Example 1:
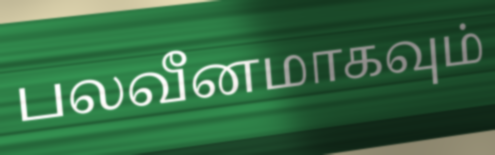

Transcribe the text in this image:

பலவீனமாகவும்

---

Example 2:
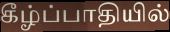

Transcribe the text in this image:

கீழ்ப்பாதியில்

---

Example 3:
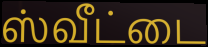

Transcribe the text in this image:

ஸ்வீட்டை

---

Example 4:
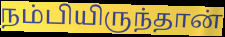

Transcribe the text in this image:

நம்பியிருந்தான்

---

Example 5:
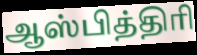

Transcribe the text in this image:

ஆஸ்பித்திரி